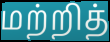
மற்றித்